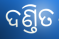
ଦଣ୍ତିତ